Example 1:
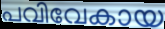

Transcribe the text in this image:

പവിവേകായ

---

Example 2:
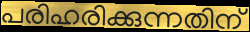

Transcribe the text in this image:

പരിഹരിക്കുന്നതിന്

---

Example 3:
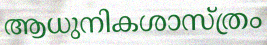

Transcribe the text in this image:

ആധുനികശാസ്ത്രം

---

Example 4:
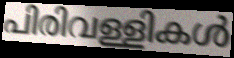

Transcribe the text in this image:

പിരിവള്ളികൾ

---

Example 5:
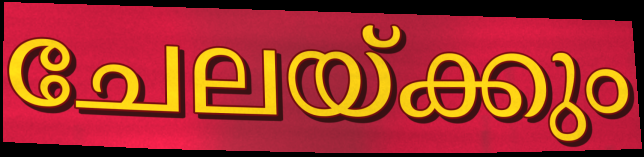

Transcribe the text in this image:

ചേലയ്ക്കും